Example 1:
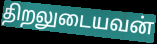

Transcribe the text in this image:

திறலுடையவன்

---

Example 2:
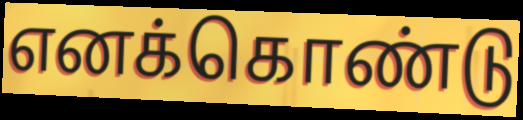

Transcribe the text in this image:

எனக்கொண்டு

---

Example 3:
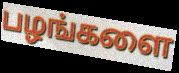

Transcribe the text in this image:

பழங்களை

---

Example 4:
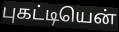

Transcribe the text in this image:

புகட்டியென்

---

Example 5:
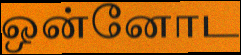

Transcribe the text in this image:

ஒன்னோட